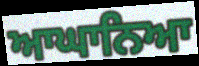
ਆਘਾਨਿਆ